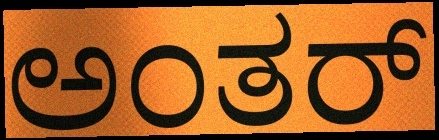
ಅಂತರ್